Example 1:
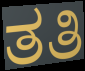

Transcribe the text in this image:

ತತಿ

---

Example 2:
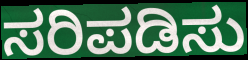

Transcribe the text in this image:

ಸರಿಪಡಿಸು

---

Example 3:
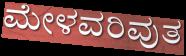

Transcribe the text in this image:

ಮೇಳವರಿವುತ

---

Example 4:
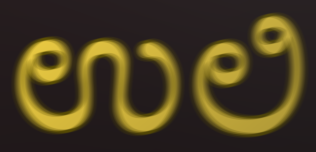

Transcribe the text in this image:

ಉಲಿ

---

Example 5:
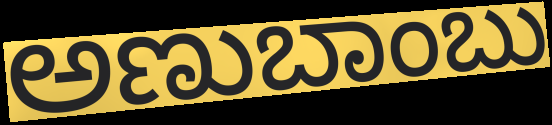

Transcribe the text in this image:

ಅಣುಬಾಂಬು